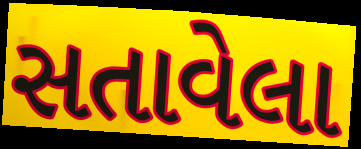
સતાવેલા